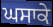
ਘਸਾਕੇ